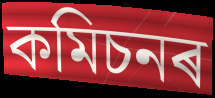
কমিচনৰ